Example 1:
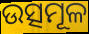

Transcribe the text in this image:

ଉତ୍ସମୂଳ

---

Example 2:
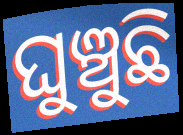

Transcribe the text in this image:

ଘୁଞ୍ଚୁଛି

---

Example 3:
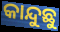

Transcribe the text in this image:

କାନ୍ଦୁଛୁ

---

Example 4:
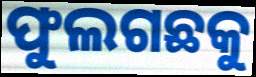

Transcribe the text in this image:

ଫୁଲଗଛକୁ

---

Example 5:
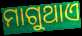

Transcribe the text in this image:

ମାଗୁଥାଏ